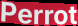
Perrot